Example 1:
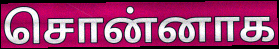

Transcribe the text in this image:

சொன்னாக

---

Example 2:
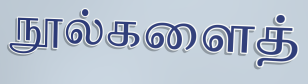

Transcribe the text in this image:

நூல்களைத்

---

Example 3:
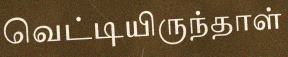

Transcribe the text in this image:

வெட்டியிருந்தாள்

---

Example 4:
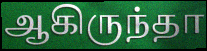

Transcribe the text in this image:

ஆகிருந்தா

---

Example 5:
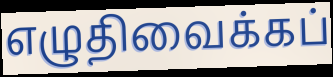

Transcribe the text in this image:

எழுதிவைக்கப்